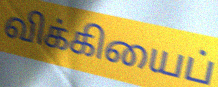
விக்கியைப்